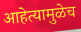
आहेत्यामुळेच